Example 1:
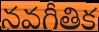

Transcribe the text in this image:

నవగీతిక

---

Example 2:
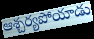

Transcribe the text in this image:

ఆశ్చర్యపోయాడు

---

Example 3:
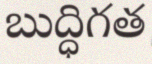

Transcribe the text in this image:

బుద్ధిగత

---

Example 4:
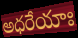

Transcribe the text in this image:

అధరేయాః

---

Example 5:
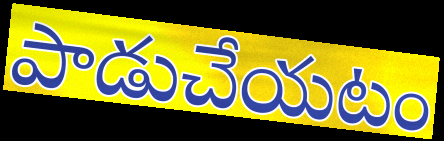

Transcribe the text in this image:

పాడుచేయటం